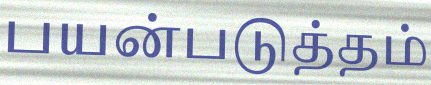
பயன்படுத்தம்